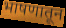
भाषणातून